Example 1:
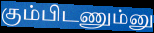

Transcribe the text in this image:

கும்பிடணும்னு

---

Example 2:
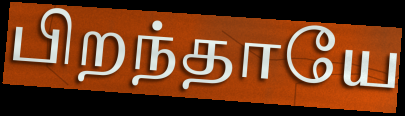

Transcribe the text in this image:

பிறந்தாயே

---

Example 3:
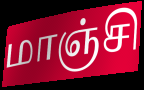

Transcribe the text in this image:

மாஞ்சி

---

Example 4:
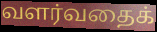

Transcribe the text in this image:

வளர்வதைக்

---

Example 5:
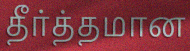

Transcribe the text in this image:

தீர்த்தமான